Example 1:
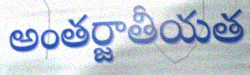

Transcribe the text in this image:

అంతర్జాతీయత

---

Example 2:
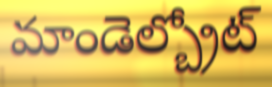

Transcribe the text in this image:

మాండెల్బ్రోట్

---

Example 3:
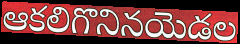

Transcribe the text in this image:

ఆకలిగొనినయెడల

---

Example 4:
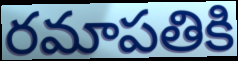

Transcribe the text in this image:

రమాపతికి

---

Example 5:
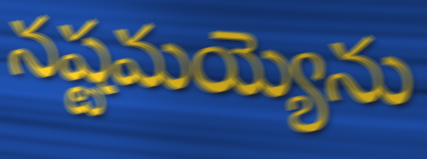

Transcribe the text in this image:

నష్టమయ్యెను